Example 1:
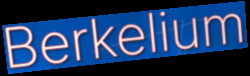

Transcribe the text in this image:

Berkelium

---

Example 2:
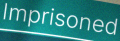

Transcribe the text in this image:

Imprisoned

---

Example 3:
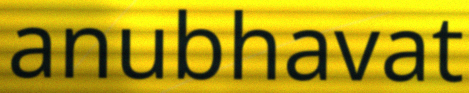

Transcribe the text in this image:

anubhavat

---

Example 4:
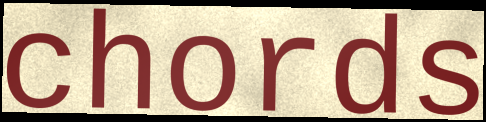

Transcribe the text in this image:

chords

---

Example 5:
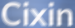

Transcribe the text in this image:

Cixin